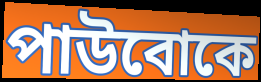
পাউবোকে